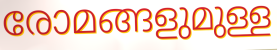
രോമങ്ങളുമുള്ള